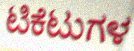
ಟಿಕೆಟುಗಳ